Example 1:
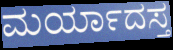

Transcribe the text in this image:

ಮರ್ಯಾದಸ್ತ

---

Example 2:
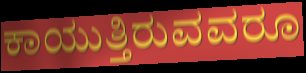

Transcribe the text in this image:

ಕಾಯುತ್ತಿರುವವರೂ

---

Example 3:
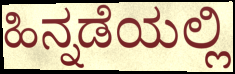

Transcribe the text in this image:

ಹಿನ್ನಡೆಯಲ್ಲಿ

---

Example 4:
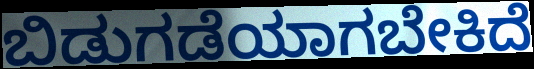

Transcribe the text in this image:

ಬಿಡುಗಡೆಯಾಗಬೇಕಿದೆ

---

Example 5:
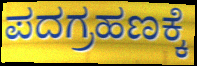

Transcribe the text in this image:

ಪದಗ್ರಹಣಕ್ಕೆ